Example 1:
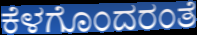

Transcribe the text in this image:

ಕೆಳಗೊಂದರಂತೆ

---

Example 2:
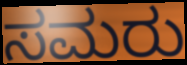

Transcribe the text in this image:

ಸಮರು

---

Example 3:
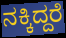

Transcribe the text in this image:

ನಕ್ಕಿದ್ದರೆ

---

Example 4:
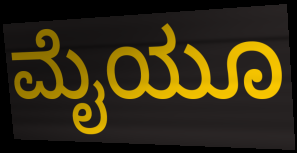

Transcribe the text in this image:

ಮೈಯೂ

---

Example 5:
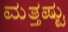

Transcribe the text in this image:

ಮತ್ತಷ್ಟು